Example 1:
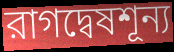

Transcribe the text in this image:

রাগদ্বেষশূন্য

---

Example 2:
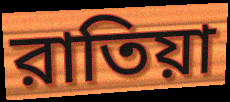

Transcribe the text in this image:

রাতিয়া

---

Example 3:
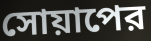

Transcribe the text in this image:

সোয়াপের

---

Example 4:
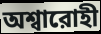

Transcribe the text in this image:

অশ্বারোহী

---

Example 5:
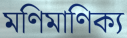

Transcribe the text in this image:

মণিমাণিক্য